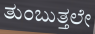
ತುಂಬುತ್ತಲೇ